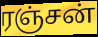
ரஞ்சன்